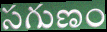
సగుణం